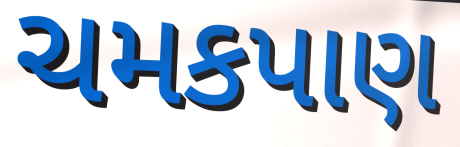
ચમકપાણ